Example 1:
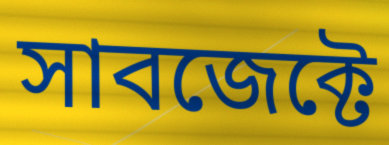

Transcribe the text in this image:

সাবজেক্টে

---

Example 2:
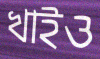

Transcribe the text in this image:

খাইও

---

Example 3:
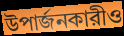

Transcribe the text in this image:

উপার্জনকারীও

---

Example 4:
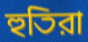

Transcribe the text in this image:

হুতিরা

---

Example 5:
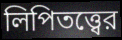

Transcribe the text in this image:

লিপিতত্ত্বের